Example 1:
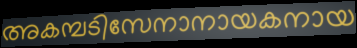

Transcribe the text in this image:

അകമ്പടിസേനാനായകനായ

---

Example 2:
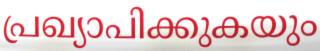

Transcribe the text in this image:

പ്രഖ്യാപിക്കുകയും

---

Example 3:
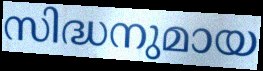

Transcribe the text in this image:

സിദ്ധനുമായ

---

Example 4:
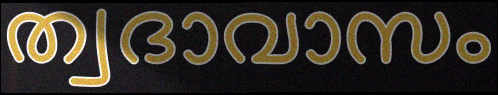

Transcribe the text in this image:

ത്വദാവാസം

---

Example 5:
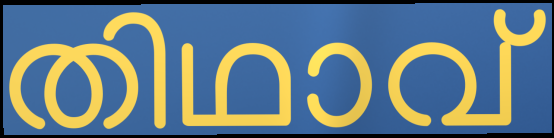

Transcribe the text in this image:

തിഥാവ്